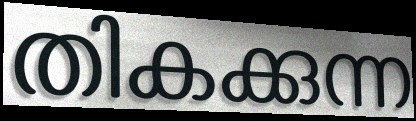
തികക്കുന്ന